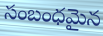
సంబంధమైన